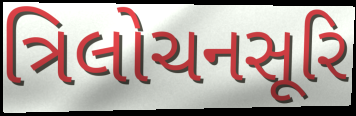
ત્રિલોચનસૂરિ